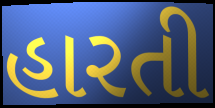
હારતી